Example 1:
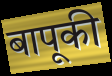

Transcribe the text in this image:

बापूकी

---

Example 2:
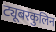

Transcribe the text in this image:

ट्यूबरकुलिन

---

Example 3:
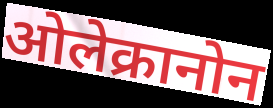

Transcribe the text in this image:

ओलेक्रानोन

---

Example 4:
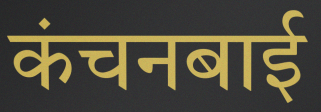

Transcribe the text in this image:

कंचनबाई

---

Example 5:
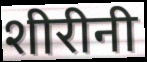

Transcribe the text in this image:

शीरीनी